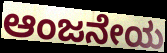
ಆಂಜನೇಯ